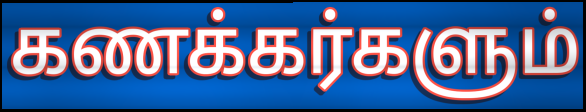
கணக்கர்களும்